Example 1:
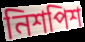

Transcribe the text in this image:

নিশপিশ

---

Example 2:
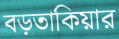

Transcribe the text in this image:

বড়তাকিয়ার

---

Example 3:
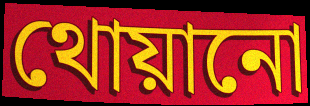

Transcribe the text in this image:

থোয়ানো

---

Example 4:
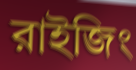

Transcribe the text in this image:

রাইজিং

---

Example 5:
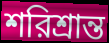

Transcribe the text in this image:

শরিশ্রান্ত